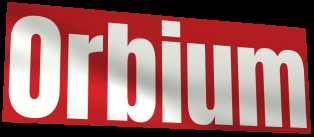
Orbium